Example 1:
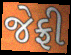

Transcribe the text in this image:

જેફ્રી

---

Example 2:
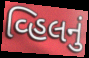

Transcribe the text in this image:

વ્હિલનું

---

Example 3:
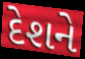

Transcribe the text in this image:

દેશને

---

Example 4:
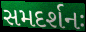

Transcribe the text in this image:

સમદર્શનઃ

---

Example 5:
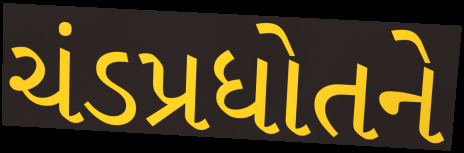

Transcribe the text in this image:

ચંડપ્રધોતને